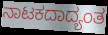
ನಾಟಕದಾದ್ಯಂತ